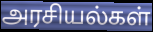
அரசியல்கள்